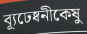
ব্যূঢেষ্বনীকেষু